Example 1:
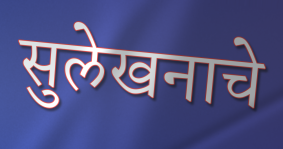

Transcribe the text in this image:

सुलेखनाचे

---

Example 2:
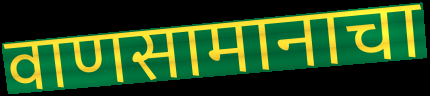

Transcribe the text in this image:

वाणसामानाचा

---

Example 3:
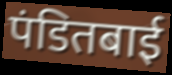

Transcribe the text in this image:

पंडितबाई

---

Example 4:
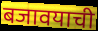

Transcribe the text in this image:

बजावयाची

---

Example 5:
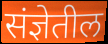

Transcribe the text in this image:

संज्ञेतील